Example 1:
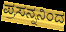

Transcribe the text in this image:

ಪ್ರಸನ್ನನಿಂದ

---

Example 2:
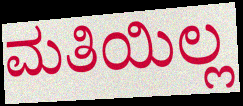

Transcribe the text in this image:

ಮತಿಯಿಲ್ಲ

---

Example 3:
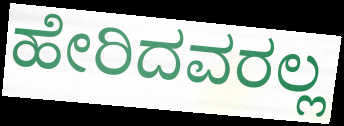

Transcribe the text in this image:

ಹೇರಿದವರಲ್ಲ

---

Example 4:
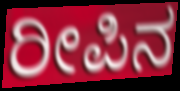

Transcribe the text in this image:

ರೀಪಿನ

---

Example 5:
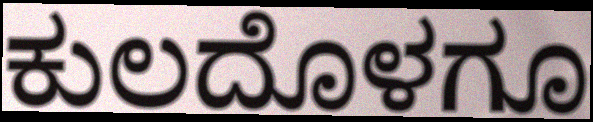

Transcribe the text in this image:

ಕುಲದೊಳಗೂ